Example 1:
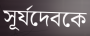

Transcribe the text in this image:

সূর্যদেবকে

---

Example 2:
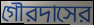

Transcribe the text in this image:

গৌরদাসের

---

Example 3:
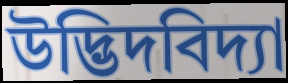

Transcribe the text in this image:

উদ্ভিদবিদ্যা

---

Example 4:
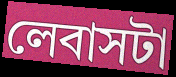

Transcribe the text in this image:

লেবাসটা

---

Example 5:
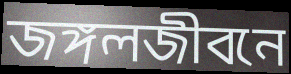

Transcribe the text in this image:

জঙ্গলজীবনে